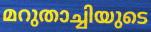
മറുതാച്ചിയുടെ